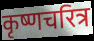
कृष्णचरित्र